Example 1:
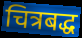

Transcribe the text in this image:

चित्रबद्ध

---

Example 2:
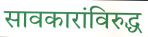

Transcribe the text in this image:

सावकारांविरुद्ध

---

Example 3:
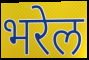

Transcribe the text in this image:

भरेल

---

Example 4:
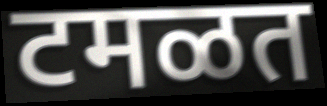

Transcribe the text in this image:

टमळत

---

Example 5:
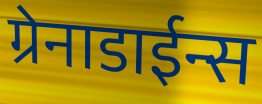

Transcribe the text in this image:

ग्रेनाडाईन्स